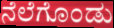
ನೆಲೆಗೊಂಡು